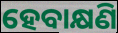
ହେବାକ୍ଷଣି